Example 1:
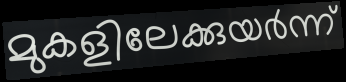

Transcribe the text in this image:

മുകളിലേക്കുയർന്ന്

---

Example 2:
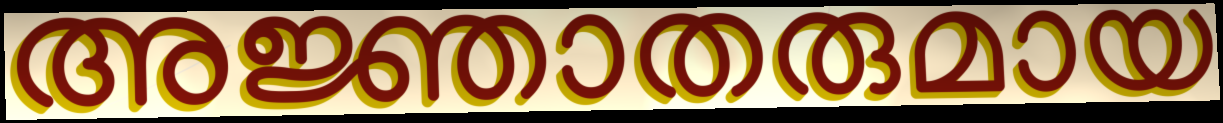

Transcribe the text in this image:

അജ്ഞാതരുമായ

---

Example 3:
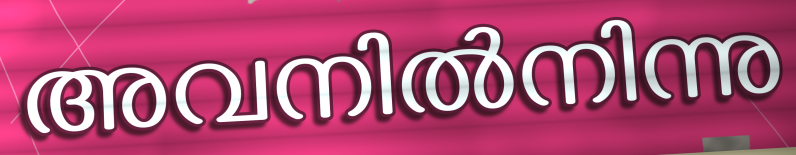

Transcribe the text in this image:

അവനിൽനിന്നു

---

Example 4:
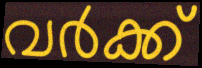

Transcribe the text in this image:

വർക്ക്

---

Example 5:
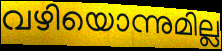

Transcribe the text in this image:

വഴിയൊന്നുമില്ല